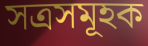
সত্ৰসমূহক